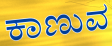
ಕಾಣುವ